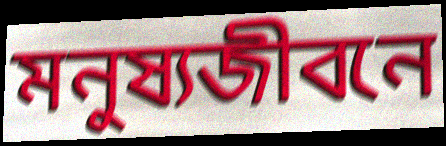
মনুষ্যজীবনে